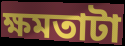
ক্ষমতাটা